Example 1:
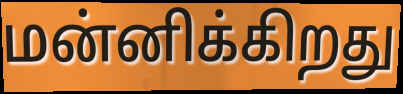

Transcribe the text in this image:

மன்னிக்கிறது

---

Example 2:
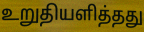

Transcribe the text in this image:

உறுதியளித்தது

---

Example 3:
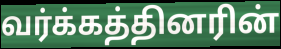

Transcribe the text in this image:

வர்க்கத்தினரின்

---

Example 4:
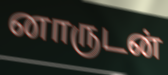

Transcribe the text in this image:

னாருடன்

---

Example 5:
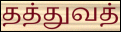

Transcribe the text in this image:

தத்துவத்